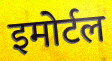
इमोर्टल